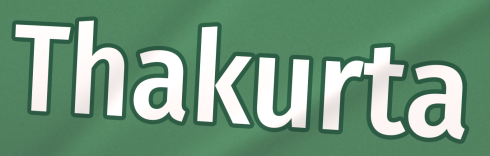
Thakurta